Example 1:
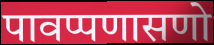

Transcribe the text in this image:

पावप्पणासणो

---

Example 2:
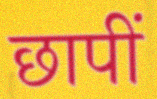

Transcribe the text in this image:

छापीं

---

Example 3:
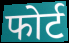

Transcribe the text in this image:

फोर्ट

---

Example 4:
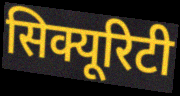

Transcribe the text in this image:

सिक्यूरिटी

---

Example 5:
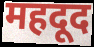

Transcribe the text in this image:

महदूद